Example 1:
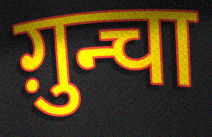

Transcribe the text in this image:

ग़ुन्चा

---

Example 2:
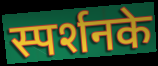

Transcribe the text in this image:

स्पर्शनके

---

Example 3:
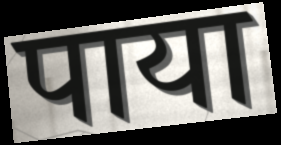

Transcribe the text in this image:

पाया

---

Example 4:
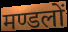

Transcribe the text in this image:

मण्‍डलों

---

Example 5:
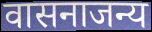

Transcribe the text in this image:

वासनाजन्य